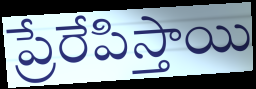
ప్రేరేపిస్తాయి